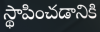
స్థాపించడానికి